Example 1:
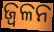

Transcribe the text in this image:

ଜ୍ଵଳନ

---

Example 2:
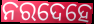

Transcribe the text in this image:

ନରଦେହେ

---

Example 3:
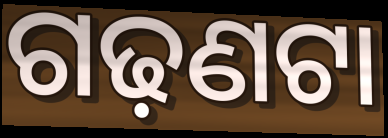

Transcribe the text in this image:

ଗଢ଼ଣଟା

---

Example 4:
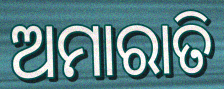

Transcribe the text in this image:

ଅମାରାତି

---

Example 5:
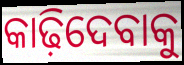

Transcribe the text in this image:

କାଢ଼ିଦେବାକୁ